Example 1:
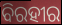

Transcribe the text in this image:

ବିରହୀର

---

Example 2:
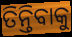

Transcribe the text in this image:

ତିନ୍ତିବାକୁ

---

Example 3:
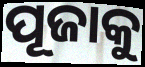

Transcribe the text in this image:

ପୂଜାକୁ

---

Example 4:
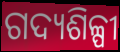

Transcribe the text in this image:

ଗଦ୍ୟଶିଳ୍ପୀ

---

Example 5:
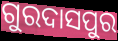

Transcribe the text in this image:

ଗୁରଦାସପୁର